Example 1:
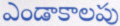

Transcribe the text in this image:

ఎండాకాలపు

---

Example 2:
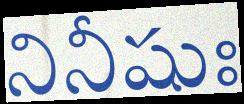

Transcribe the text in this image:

నినీషుః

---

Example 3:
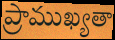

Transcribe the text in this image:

ప్రాముఖ్యతా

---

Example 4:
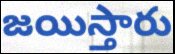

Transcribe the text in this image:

జయిస్తారు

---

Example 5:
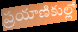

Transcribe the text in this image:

ప్రయాణికుల్లో